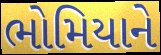
ભોમિયાને